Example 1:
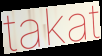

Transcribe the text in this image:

takat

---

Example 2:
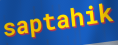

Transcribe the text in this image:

saptahik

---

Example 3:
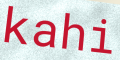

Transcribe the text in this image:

kahi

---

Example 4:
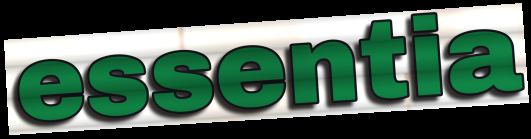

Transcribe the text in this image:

essentia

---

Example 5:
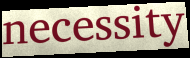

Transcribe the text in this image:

necessity